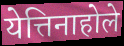
येत्तिनाहोले